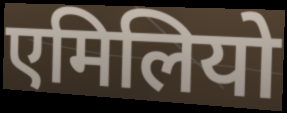
एमिलियो